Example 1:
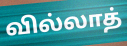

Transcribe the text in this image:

வில்லாத்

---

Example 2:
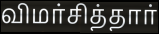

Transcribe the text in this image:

விமர்சித்தார்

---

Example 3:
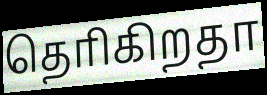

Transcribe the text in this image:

தெரிகிறதா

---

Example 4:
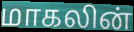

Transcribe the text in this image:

மாகலின்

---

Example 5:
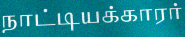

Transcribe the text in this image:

நாட்டியக்காரர்